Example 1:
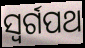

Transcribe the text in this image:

ସ୍ୱର୍ଗପଥ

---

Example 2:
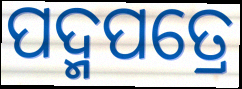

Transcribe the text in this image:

ପଦ୍ମପତ୍ରେ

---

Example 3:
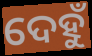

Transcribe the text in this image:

ଦେହୁଁ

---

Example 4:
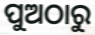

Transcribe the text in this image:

ପୁଅଠାରୁ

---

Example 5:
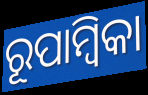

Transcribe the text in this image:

ରୂପାମ୍ୱିକା